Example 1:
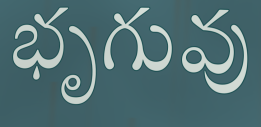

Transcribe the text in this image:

భృగువు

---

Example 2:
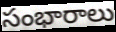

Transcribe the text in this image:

సంభారాలు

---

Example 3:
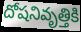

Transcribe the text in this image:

దోషనివృత్తికి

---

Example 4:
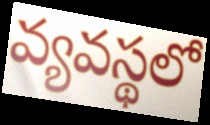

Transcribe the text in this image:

వ్యవస్థలో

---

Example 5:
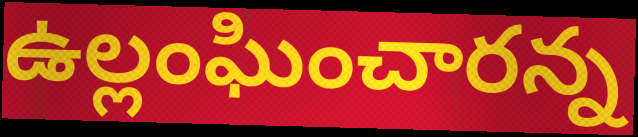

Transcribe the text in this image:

ఉల్లంఘించారన్న